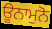
ਊਨਾਮੁਨੋ